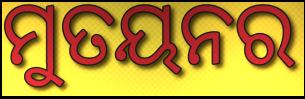
ମୁତୟନର